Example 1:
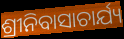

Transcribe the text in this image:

ଶ୍ରୀନିବାସାଚାର୍ଯ୍ୟ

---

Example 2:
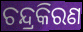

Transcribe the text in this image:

ଚନ୍ଦ୍ରକିରଣ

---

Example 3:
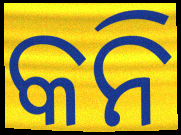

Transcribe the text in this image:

କନି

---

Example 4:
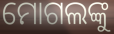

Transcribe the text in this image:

ମୋଗଲଙ୍କୁ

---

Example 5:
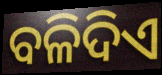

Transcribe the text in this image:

ବଳିଦିଏ